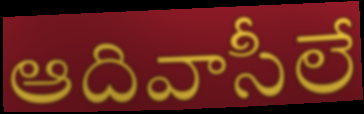
ఆదివాసీలే